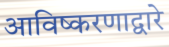
आविष्करणाद्वारे